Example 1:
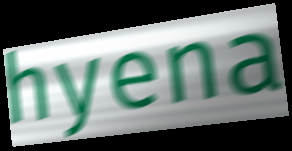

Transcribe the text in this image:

hyena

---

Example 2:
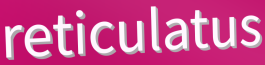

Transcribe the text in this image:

reticulatus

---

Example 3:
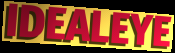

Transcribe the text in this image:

IDEALEYE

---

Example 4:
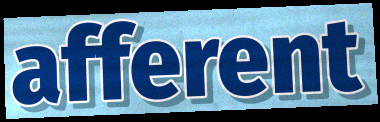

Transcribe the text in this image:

afferent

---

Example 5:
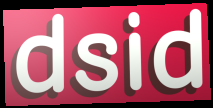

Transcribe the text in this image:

dsid